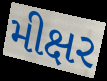
મીક્ષર